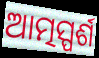
ଆତ୍ମସ୍ପର୍ଶ